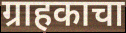
ग्राहकाचा